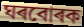
ঘৰবোৰক